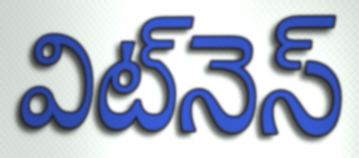
విట్‌నెస్